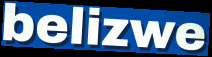
belizwe